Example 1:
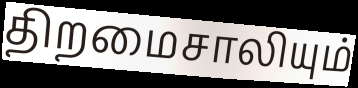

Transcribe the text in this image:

திறமைசாலியும்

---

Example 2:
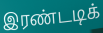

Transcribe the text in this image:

இரண்டடிக்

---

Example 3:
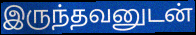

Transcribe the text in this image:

இருந்தவனுடன்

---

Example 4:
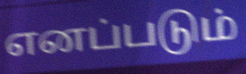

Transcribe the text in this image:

எனப்படும்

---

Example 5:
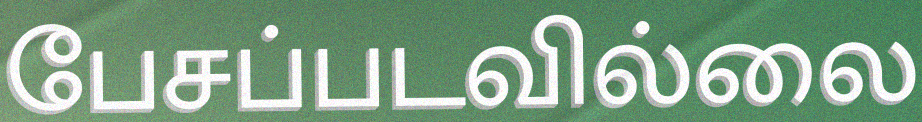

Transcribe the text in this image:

பேசப்படவில்லை